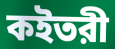
কইতরী